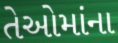
તેઓમાંના